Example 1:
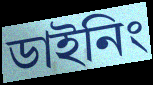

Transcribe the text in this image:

ডাইনিং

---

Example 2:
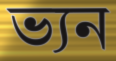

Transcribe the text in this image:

ভ্যন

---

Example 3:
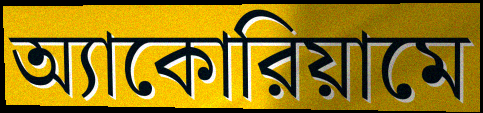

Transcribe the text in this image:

অ্যাকোরিয়ামে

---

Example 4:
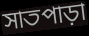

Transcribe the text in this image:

সাতপাড়া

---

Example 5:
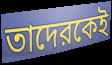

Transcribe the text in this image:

তাদেরকেই